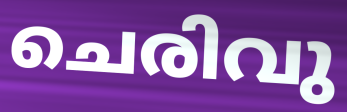
ചെരിവു